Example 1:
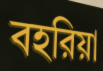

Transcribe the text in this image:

বহরিয়া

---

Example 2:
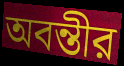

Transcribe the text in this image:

অবন্তীর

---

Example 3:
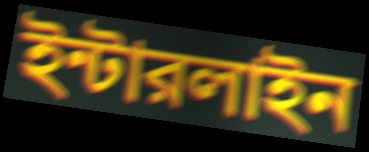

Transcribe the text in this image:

ইন্টারলাইন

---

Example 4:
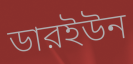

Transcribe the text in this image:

ডারইউন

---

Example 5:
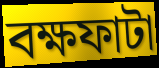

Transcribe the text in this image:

বক্ষফাটা